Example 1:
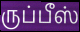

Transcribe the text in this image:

ருப்பீஸ்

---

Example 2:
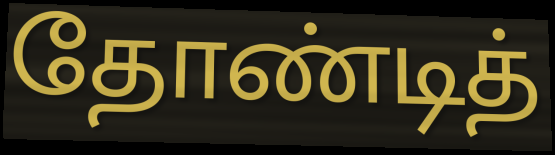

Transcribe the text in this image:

தோண்டித்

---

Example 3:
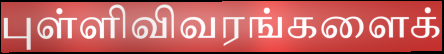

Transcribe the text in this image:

புள்ளிவிவரங்களைக்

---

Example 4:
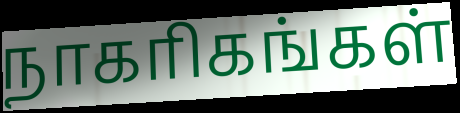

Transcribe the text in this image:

நாகரிகங்கள்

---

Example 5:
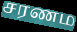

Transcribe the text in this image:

சரணம